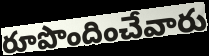
రూపొందించేవారు